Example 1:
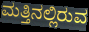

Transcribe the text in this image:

ಮತ್ತಿನಲ್ಲಿರುವ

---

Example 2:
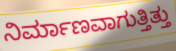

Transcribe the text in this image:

ನಿರ್ಮಾಣವಾಗುತ್ತಿತ್ತು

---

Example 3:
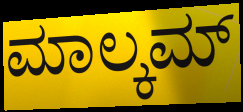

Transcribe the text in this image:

ಮಾಲ್ಕಮ್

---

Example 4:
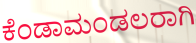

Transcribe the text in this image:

ಕೆಂಡಾಮಂಡಲರಾಗಿ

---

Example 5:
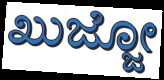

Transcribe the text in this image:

ಖುಜ್ಜೋ